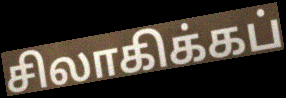
சிலாகிக்கப்